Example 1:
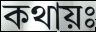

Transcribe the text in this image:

কথায়ঃ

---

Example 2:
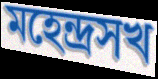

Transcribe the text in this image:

মহেন্দ্রসখ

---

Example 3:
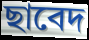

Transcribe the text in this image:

ছাবেদ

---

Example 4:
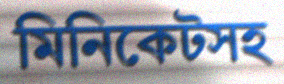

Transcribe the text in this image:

মিনিকেটসহ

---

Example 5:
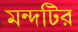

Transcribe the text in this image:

মন্দটির